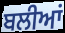
ਬਲੀਆਂ